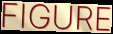
FIGURE